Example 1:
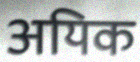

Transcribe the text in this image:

अयिक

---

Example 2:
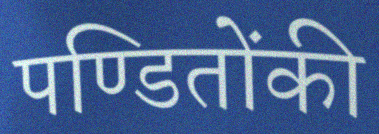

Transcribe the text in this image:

पण्डितोंकी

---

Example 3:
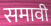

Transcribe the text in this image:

समावी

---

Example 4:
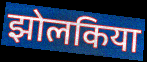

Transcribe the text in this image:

झोलकिया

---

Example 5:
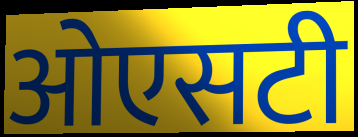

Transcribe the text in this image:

ओएसटी